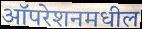
ऑपरेशनमधील